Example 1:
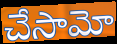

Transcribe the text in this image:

చేసామో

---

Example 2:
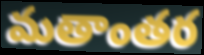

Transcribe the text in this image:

మతాంతర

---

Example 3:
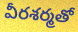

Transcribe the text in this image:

వీరశర్మతో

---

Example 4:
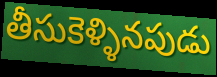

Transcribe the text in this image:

తీసుకెళ్ళినపుడు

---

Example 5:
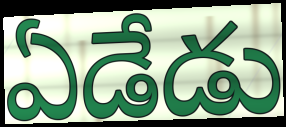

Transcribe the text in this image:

ఏడేడు